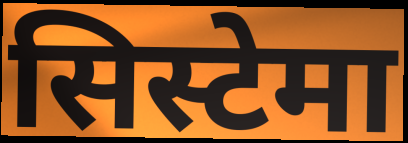
सिस्टेमा